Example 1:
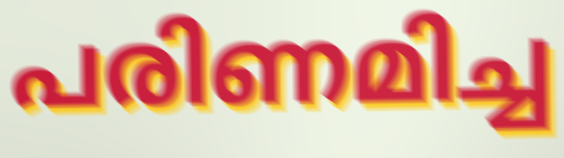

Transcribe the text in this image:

പരിണമിച്ച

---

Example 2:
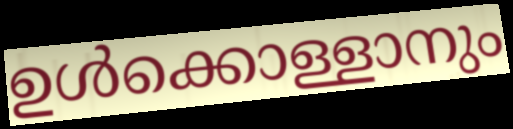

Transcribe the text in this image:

ഉൾക്കൊള്ളാനും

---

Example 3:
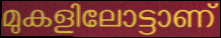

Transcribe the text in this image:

മുകളിലോട്ടാണ്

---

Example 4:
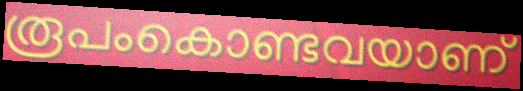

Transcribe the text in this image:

രൂപംകൊണ്ടവയാണ്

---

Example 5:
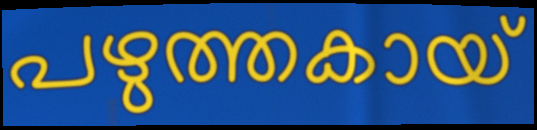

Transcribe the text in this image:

പഴുത്തകായ്